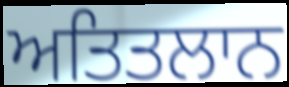
ਅਤਿਤਲਾਨ